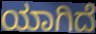
ಯಾಗಿದೆ